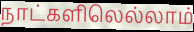
நாட்களிலெல்லாம்